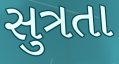
સુત્રતા